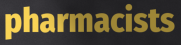
pharmacists